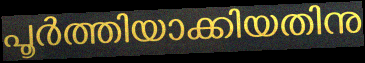
പൂർത്തിയാക്കിയതിനു